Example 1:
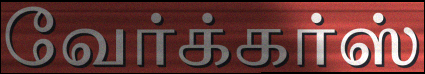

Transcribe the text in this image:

வேர்க்கர்ஸ்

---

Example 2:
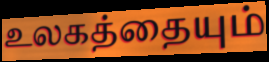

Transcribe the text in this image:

உலகத்தையும்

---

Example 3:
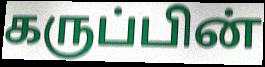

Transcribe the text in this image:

கருப்பின்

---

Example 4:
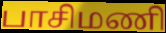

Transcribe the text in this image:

பாசிமணி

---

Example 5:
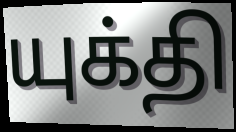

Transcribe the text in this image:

யுக்தி